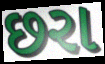
છરા